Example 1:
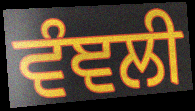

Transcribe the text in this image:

ਵੰਞਲੀ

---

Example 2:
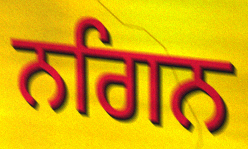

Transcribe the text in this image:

ਨਗਿਨ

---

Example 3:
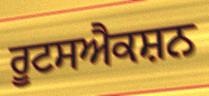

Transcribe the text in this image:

ਰੂਟਸਐਕਸ਼ਨ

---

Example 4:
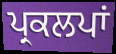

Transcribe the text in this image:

ਪ੍ਰਕਲਪਾਂ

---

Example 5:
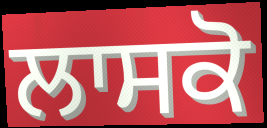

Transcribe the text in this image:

ਲਾਸਕੋ